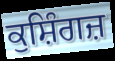
ਕੁਸ਼ਿੰਗਜ਼